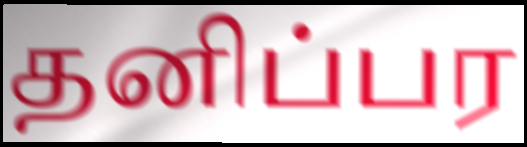
தனிப்பர